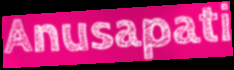
Anusapati